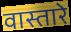
वास्तारे